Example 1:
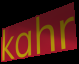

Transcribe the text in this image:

kahr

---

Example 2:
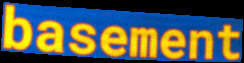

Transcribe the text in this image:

basement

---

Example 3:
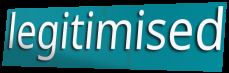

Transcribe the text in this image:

legitimised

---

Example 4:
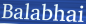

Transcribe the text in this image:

Balabhai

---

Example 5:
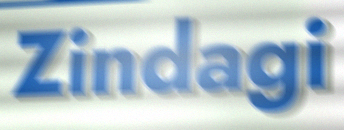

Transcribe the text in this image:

Zindagi